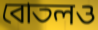
বোতলও